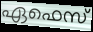
ഏഫെസ്